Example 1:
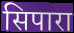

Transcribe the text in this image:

सिपारा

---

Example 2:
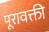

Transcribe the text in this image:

पूरावक्ती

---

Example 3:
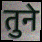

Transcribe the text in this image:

तुने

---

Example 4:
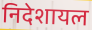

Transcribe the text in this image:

निदेशायल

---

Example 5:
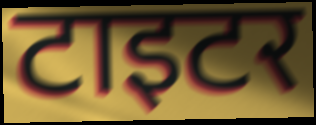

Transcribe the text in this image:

टाइटर